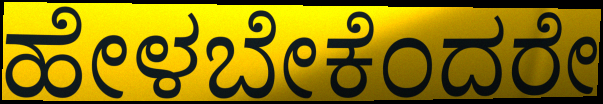
ಹೇಳಬೇಕೆಂದರೇ